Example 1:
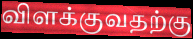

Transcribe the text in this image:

விளக்குவதற்கு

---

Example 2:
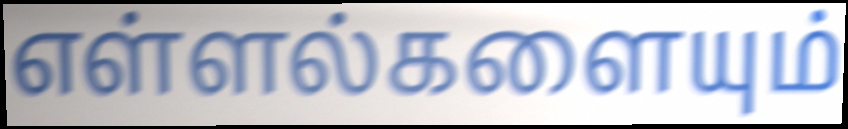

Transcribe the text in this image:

எள்ளல்களையும்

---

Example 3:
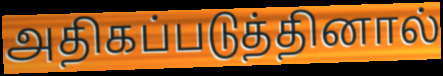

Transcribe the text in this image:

அதிகப்படுத்தினால்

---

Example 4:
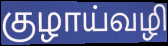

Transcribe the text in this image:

குழாய்வழி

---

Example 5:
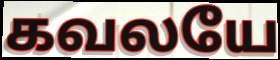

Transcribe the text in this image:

கவலயே